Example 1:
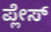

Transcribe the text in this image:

ಪ್ಲೇಸ್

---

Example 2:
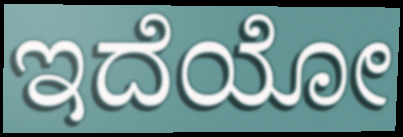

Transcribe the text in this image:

ಇದೆಯೋ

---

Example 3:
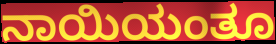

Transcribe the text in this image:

ನಾಯಿಯಂತೂ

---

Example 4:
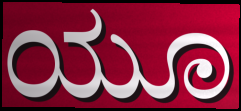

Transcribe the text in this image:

ಯೂ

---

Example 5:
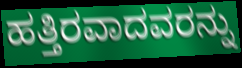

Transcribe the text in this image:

ಹತ್ತಿರವಾದವರನ್ನು